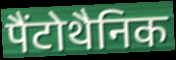
पैंटोथैनिक